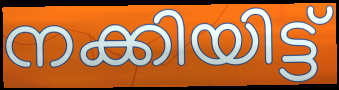
നക്കിയിട്ട്